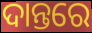
ଦାନ୍ତରେ